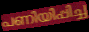
പണിയിപ്പിച്ച